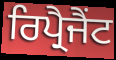
ਰਿਪ੍ਰੈਜੈਂਟ